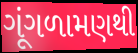
ગૂંગળામણથી